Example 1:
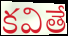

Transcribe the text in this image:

కవితే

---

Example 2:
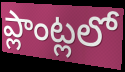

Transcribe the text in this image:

ప్లాంట్లలో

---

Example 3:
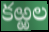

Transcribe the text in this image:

కఱ్ఱల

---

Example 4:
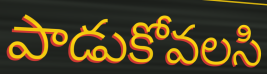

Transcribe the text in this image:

పాడుకోవలసి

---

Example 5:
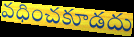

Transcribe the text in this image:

వధించకూడదు